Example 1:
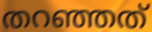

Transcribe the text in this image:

തറഞ്ഞത്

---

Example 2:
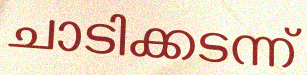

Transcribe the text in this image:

ചാടിക്കടന്ന്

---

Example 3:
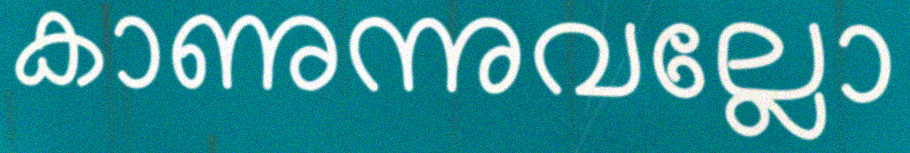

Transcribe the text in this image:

കാണുന്നുവല്ലോ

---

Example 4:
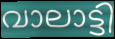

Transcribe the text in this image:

വാലാട്ടി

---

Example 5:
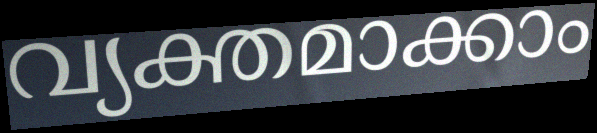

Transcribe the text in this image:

വ്യക്തമാക്കാം